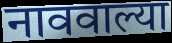
नाववाल्या